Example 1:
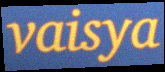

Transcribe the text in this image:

vaisya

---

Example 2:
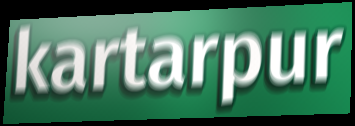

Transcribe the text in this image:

kartarpur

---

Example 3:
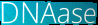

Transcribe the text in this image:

DNAase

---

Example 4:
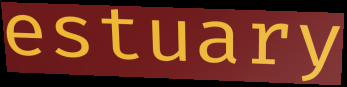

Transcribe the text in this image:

estuary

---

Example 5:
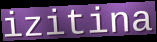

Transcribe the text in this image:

izitina